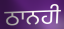
ਠਾਨਹੀ